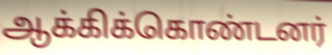
ஆக்கிக்கொண்டனர்